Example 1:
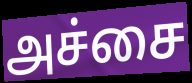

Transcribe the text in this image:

அச்சை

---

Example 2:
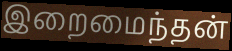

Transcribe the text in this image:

இறைமைந்தன்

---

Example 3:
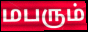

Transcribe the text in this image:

மபரும்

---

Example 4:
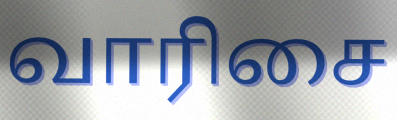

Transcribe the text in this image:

வாரிசை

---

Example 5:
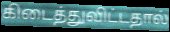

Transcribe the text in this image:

கிடைத்துவிட்டதால்